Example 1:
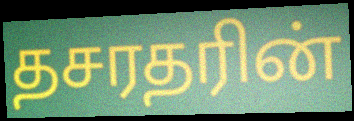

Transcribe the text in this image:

தசரதரின்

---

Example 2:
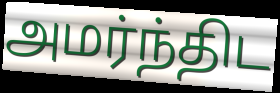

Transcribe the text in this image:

அமர்ந்திட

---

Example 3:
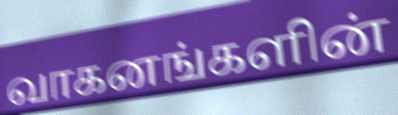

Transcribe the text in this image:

வாகனங்களின்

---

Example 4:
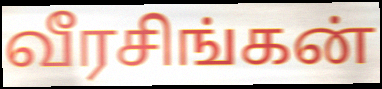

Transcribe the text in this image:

வீரசிங்கன்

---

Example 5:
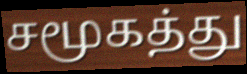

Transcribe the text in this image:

சமூகத்து